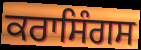
ਕਰਾਸਿੰਗਸ